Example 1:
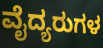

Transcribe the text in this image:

ವೈದ್ಯರುಗಳ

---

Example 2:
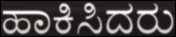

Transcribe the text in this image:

ಹಾಕಿಸಿದರು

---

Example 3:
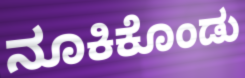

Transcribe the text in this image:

ನೂಕಿಕೊಂಡು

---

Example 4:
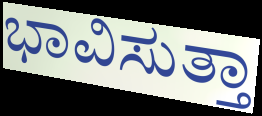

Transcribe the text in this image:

ಭಾವಿಸುತ್ತಾ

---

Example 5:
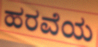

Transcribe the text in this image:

ಹರವೆಯ